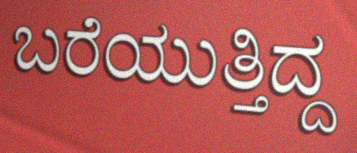
ಬರೆಯುತ್ತಿದ್ದ